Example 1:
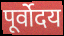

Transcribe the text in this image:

पूर्वोदय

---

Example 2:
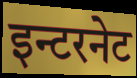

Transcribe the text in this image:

इन्टरनेट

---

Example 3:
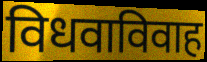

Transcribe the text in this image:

विधवाविवाह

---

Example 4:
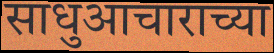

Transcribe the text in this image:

साधुआचाराच्या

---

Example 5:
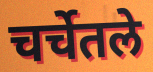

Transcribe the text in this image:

चर्चेतले